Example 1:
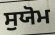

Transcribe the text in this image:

ਸੁਯੋਮ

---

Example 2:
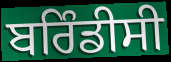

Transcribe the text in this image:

ਬਰਿੰਡੀਸੀ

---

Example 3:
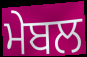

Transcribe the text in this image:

ਮੇਬਲ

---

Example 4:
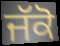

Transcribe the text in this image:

ਜੱਕੋ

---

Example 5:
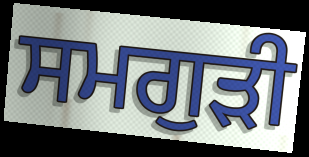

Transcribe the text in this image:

ਸਮਗੁੜੀ